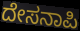
ದೇಸನಾಪಿ